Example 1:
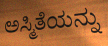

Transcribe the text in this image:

ಅಸ್ಮಿತೆಯನ್ನು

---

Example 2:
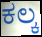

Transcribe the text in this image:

ಕಲ್ಕ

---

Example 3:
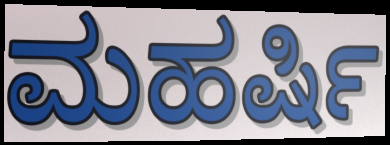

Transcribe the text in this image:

ಮಹರ್ಷಿ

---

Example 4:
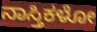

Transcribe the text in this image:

ನಾಸ್ತಿಕಳೋ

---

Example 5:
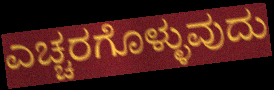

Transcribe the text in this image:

ಎಚ್ಚರಗೊಳ್ಳುವುದು